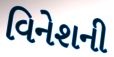
વિનેશની